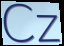
Cz